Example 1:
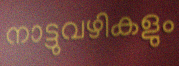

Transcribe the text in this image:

നാട്ടുവഴികളും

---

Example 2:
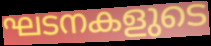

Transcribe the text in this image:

ഘടനകളുടെ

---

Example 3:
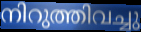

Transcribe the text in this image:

നിറുത്തിവച്ചു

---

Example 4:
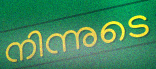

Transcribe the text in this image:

നിന്നുടെ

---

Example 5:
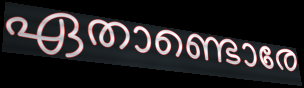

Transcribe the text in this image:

ഏതാണ്ടൊരേ